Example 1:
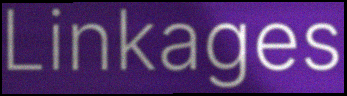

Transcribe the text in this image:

Linkages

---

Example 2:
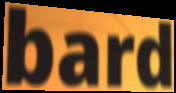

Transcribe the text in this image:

bard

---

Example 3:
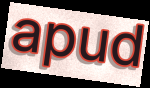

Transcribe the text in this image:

apud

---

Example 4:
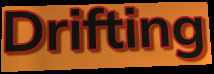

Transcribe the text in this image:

Drifting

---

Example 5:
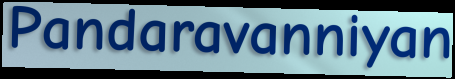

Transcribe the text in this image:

Pandaravanniyan